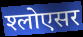
श्लोएसर